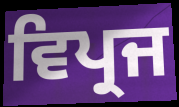
ਵਿਪ੍ਰਜ